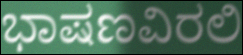
ಭಾಷಣವಿರಲಿ